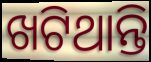
ଖଟିଥାନ୍ତି